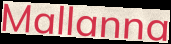
Mallanna